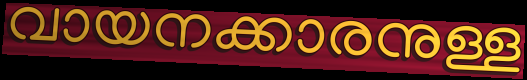
വായനക്കാരനുള്ള